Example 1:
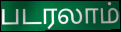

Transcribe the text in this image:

படரலாம்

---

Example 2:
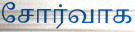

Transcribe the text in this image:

சோர்வாக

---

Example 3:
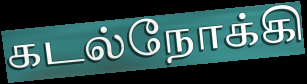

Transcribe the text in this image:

கடல்நோக்கி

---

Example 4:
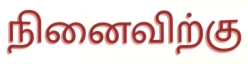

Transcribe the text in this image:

நினைவிற்கு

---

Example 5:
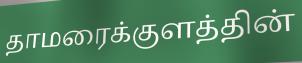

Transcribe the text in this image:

தாமரைக்குளத்தின்